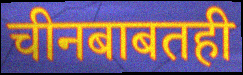
चीनबाबतही